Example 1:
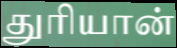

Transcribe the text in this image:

துரியான்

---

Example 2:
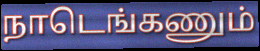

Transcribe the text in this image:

நாடெங்கணும்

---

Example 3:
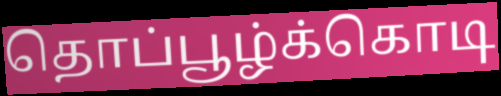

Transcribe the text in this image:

தொப்பூழ்க்கொடி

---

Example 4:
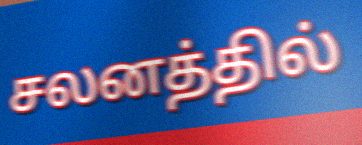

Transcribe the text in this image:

சலனத்தில்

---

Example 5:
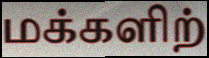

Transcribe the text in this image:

மக்களிற்